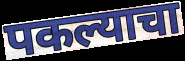
पकल्याचा